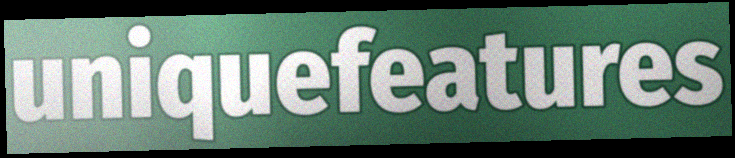
uniquefeatures